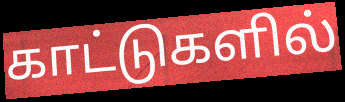
காட்டுகளில்